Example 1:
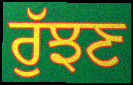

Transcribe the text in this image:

ਰੁੱਝਣ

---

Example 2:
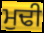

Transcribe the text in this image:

ਮੁਢੀ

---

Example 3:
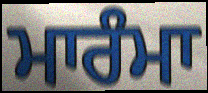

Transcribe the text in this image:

ਮਾਰੰਮਾ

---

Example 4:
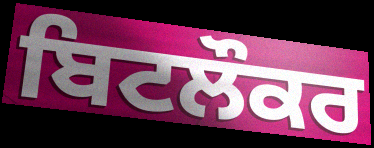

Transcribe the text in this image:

ਬਿਟਲੌਕਰ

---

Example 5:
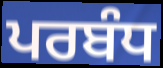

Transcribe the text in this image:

ਪਰਬੰਧ